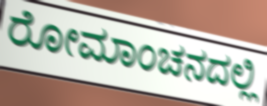
ರೋಮಾಂಚನದಲ್ಲಿ